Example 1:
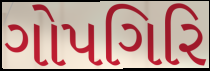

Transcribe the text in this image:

ગોપગિરિ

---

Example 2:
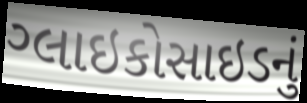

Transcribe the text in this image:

ગ્લાઇકોસાઇડનું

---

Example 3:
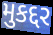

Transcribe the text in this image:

મુકદ્દર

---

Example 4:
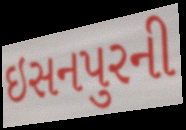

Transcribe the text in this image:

ઇસનપુરની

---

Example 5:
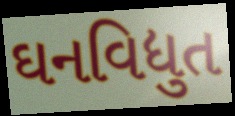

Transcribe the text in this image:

ઘનવિદ્યુત